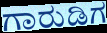
ಗಾರುಡಿಗ